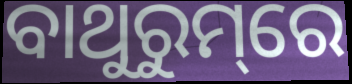
ବାଥୁରୁମ୍‌ରେ